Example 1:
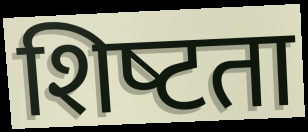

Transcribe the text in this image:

शिष्‍टता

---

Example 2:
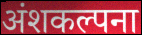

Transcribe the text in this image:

अंशकल्पना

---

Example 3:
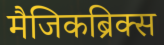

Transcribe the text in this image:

मैजिकब्रिक्स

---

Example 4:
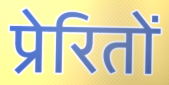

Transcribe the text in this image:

प्रेरितों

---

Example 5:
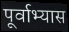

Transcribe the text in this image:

पूर्वाभ्यास